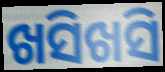
ଖସିଖସି